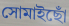
সোমাইছোঁ